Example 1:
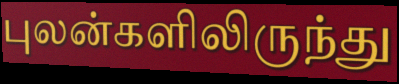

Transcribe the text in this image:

புலன்களிலிருந்து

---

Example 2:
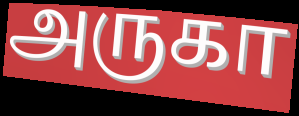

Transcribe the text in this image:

அருகா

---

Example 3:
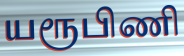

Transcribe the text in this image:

யரூபிணி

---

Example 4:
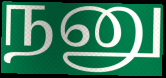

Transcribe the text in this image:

நனு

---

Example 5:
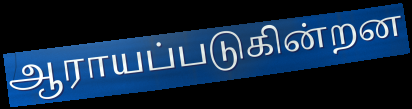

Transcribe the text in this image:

ஆராயப்படுகின்றன